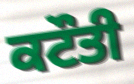
ਕਟੌਤੀ